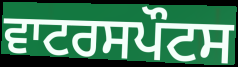
ਵਾਟਰਸਪੌਟਸ